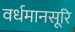
वर्धमानसूरि